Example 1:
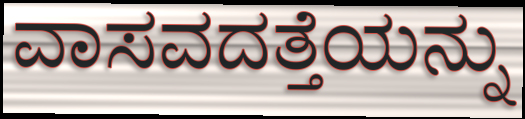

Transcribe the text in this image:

ವಾಸವದತ್ತೆಯನ್ನು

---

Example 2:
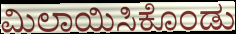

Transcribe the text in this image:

ಮಿಲಾಯಿಸಿಕೊಂಡು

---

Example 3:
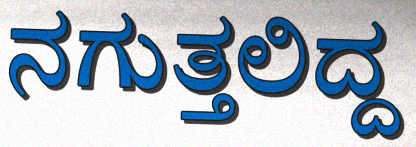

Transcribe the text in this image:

ನಗುತ್ತಲಿದ್ದ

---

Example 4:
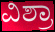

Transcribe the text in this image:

ವಿಶ್ರಾ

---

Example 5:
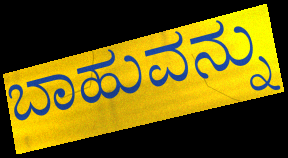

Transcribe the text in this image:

ಬಾಹುವನ್ನು